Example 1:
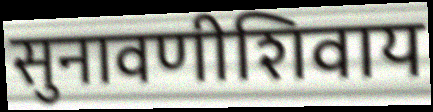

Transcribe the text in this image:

सुनावणीशिवाय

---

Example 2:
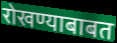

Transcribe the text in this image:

रोखण्याबाबत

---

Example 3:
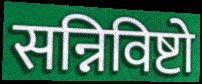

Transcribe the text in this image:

सन्निविष्टो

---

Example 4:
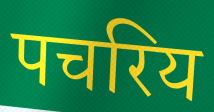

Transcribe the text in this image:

पचरिय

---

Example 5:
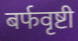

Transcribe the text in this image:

बर्फवृष्टी